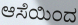
ಆಸೆಯಿಂದ